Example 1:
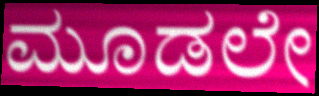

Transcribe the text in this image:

ಮೂಡಲೇ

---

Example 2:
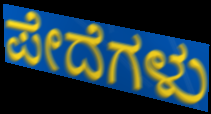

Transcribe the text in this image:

ಪೇದೆಗಳು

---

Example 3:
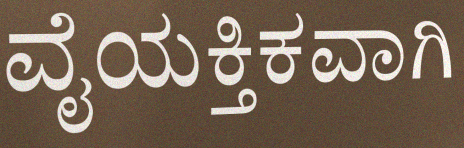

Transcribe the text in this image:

ವೈಯಕ್ತಿಕವಾಗಿ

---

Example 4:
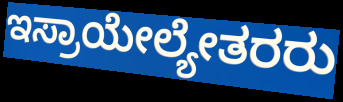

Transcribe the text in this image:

ಇಸ್ರಾಯೇಲ್ಯೇತರರು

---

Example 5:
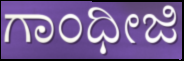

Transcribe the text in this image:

ಗಾಂಧೀಜಿ